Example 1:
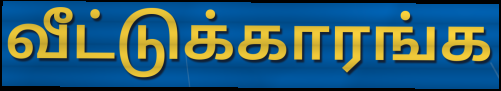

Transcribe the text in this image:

வீட்டுக்காரங்க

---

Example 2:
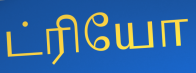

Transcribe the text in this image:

ட்ரியோ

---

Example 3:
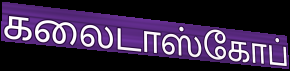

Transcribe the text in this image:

கலைடாஸ்கோப்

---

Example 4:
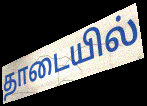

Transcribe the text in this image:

தாடையில்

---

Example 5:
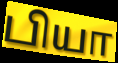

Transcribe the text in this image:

பியா